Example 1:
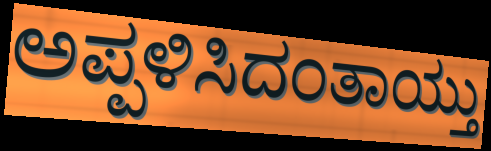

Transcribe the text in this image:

ಅಪ್ಪಳಿಸಿದಂತಾಯ್ತು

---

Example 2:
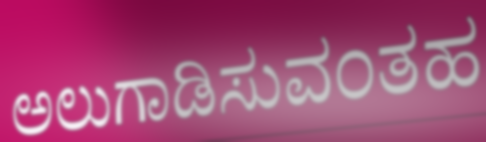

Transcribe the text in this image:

ಅಲುಗಾಡಿಸುವಂತಹ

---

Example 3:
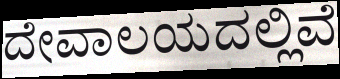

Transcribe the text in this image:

ದೇವಾಲಯದಲ್ಲಿವೆ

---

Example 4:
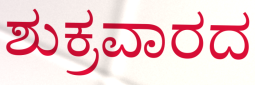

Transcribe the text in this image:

ಶುಕ್ರವಾರದ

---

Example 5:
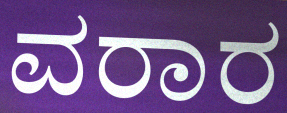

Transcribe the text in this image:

ವರಾರ